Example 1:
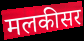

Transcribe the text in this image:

मलकीसर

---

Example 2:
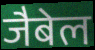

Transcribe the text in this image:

जैबेल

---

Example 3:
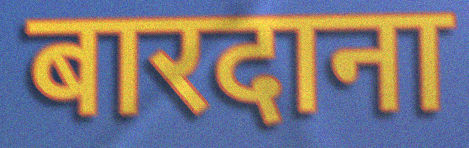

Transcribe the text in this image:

बारदाना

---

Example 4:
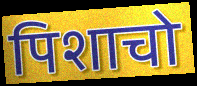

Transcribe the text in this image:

पिशाचो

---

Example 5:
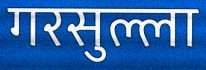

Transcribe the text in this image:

गरसुल्ला